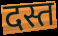
दस्त